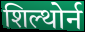
शिल्थोर्न